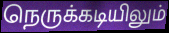
நெருக்கடியிலும்